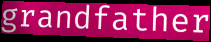
grandfather